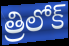
త్రిలోక్